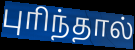
புரிந்தால்